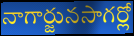
నాగార్జునసాగర్లో